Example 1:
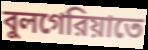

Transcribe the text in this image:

বুলগেরিয়াতে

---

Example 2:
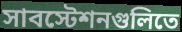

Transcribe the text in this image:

সাবস্টেশনগুলিতে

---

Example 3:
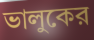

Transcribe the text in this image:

ভালুকের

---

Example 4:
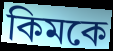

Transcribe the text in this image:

কিমকে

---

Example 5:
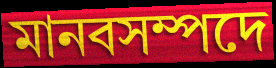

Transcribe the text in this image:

মানবসম্পদে